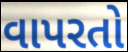
વાપરતો